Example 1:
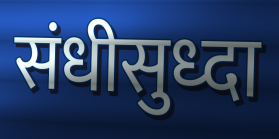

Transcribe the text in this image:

संधीसुध्दा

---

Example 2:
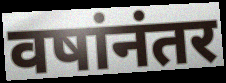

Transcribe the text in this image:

वषांनंतर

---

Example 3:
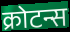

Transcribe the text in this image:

क्रोटन्स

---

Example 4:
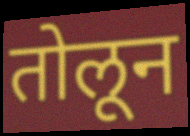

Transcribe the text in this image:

तोलून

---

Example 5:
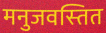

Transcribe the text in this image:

मनुजवस्तित